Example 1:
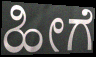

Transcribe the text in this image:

ಹೀಗೆ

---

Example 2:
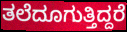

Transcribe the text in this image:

ತಲೆದೂಗುತ್ತಿದ್ದರೆ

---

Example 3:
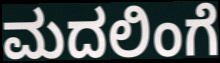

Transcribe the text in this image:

ಮದಲಿಂಗೆ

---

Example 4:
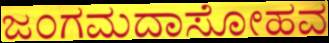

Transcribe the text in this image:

ಜಂಗಮದಾಸೋಹವ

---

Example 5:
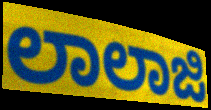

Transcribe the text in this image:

ಲಾಲಾಜಿ